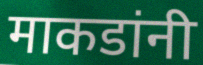
माकडांनी